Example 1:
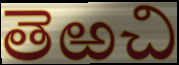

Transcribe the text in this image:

తెఱచి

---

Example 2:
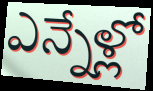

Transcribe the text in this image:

ఎన్నేళ్లో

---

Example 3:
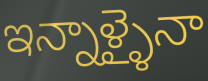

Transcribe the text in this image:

ఇన్నాళ్ళైనా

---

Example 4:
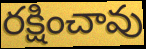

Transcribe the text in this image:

రక్షించావు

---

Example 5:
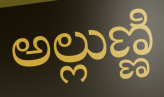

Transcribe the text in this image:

అల్లుణ్ణి